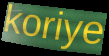
koriye